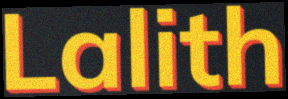
Lalith